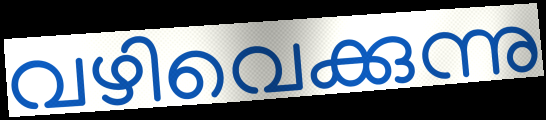
വഴിവെക്കുന്നു